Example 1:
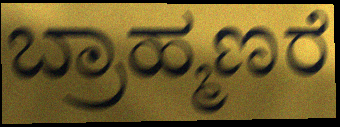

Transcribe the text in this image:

ಬ್ರಾಹ್ಮಣರೆ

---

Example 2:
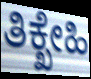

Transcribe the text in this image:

ತಿಕ್ಖೇಹಿ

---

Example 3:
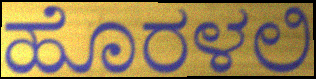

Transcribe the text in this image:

ಹೊರಳಲಿ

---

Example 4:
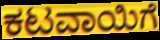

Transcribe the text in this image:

ಕಟವಾಯಿಗೆ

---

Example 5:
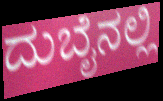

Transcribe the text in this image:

ದುಬೈನಲ್ಲಿ